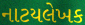
નાટયલેખક